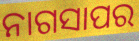
ନାଗସାପର